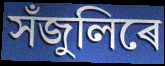
সঁজুলিৰে